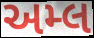
અમ્લ